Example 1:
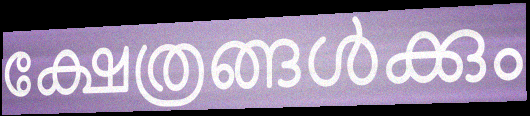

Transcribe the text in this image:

ക്ഷേത്രങ്ങൾക്കും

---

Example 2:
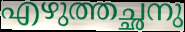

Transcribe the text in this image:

എഴുത്തച്ഛനു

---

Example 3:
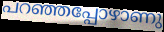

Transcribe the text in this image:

പറഞ്ഞപ്പോഴാണു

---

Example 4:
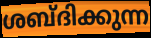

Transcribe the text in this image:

ശബ്ദിക്കുന്ന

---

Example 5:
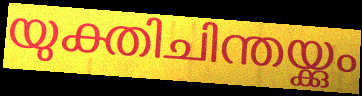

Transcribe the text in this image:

യുക്തിചിന്തയ്ക്കും